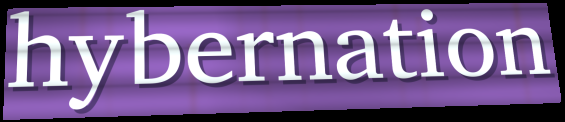
hybernation